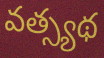
వత్స్యథ